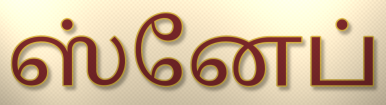
ஸ்னேப்